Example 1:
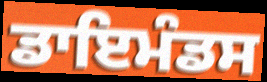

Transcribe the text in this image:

ਡਾਇਮੰਡਸ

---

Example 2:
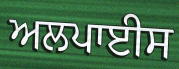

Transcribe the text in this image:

ਅਲਪਾਈਸ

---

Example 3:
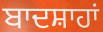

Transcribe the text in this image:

ਬਾਦਸ਼ਾਹਾਂ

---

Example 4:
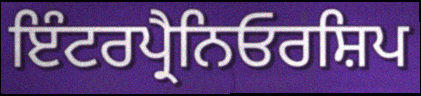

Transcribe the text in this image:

ਇੰਟਰਪ੍ਰੈਨਿਓਰਸ਼ਿਪ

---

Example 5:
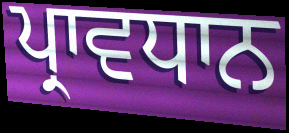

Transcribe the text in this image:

ਪ੍ਰਾਵਧਾਨ